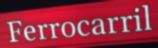
Ferrocarril